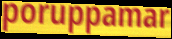
poruppamar